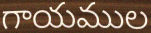
గాయముల